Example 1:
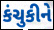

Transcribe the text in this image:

કંચુકીને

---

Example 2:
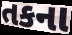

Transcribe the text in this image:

તકના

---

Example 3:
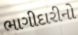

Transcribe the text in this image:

ભાગીદારીનો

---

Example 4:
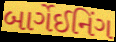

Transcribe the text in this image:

બાર્ગેઈનિંગ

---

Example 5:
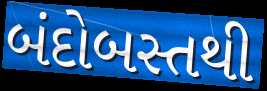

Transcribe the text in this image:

બંદોબસ્તથી